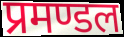
प्रमण्डल